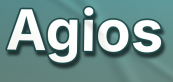
Agios